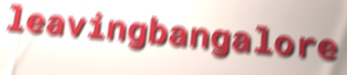
leavingbangalore